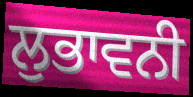
ਲੁਭਾਵਨੀ